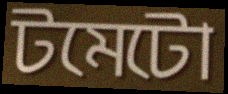
টমেটো